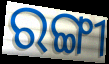
ରଙ୍ଗୀ